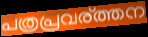
പത്രപ്രവര്ത്തന